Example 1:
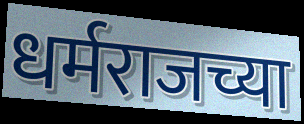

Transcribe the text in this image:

धर्मराजच्या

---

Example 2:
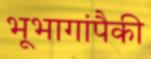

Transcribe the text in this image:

भूभागांपैकी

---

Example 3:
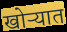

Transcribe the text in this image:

खोऱ्यात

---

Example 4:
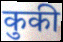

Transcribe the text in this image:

कुकी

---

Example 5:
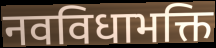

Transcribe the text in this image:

नवविधाभक्ति